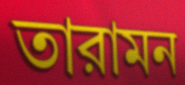
তারামন